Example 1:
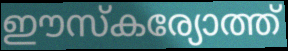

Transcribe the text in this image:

ഈസ്കര്യോത്ത്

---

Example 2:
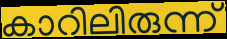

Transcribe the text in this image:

കാറിലിരുന്ന്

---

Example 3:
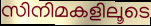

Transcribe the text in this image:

സിനിമകളിലൂടെ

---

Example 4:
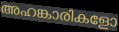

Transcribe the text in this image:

അഹങ്കാരികളോ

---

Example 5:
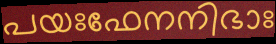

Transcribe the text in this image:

പയഃഫേനനിഭാഃ